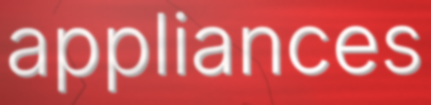
appliances